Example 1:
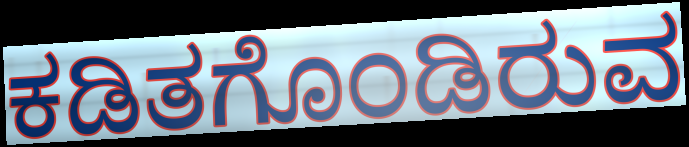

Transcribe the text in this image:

ಕಡಿತಗೊಂಡಿರುವ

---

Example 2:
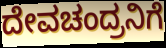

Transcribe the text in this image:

ದೇವಚಂದ್ರನಿಗೆ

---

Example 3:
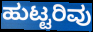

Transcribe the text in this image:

ಹುಟ್ಟರಿವು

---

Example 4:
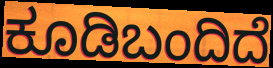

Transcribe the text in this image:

ಕೂಡಿಬಂದಿದೆ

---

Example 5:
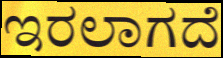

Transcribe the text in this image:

ಇರಲಾಗದೆ